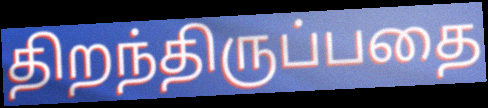
திறந்திருப்பதை